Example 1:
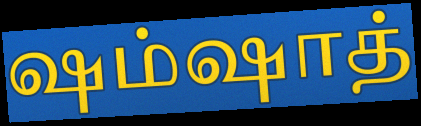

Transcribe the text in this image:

ஷம்ஷாத்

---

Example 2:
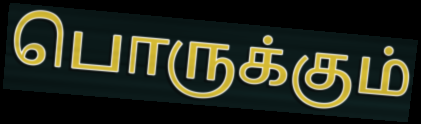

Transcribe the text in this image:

பொருக்கும்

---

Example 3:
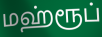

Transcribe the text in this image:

மஹ்ரூப்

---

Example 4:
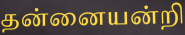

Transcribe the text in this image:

தன்னையன்றி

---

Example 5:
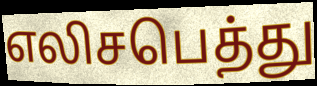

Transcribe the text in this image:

எலிசபெத்து